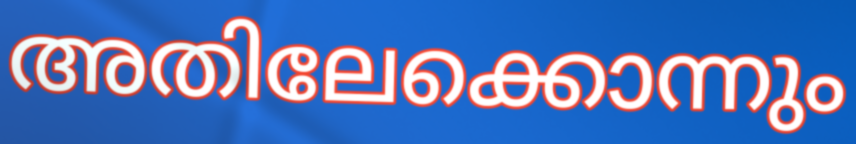
അതിലേക്കൊന്നും